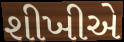
શીખીએ